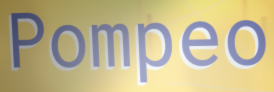
Pompeo